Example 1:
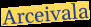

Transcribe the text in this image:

Arceivala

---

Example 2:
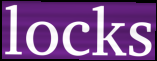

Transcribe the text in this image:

locks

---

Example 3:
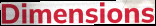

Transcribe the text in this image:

Dimensions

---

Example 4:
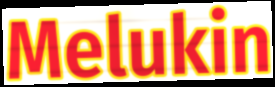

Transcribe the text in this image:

Melukin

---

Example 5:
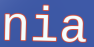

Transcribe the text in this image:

nia